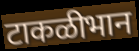
टाकळीभान